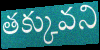
తక్కువని